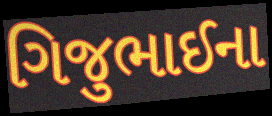
ગિજુભાઈના